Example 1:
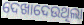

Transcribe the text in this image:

ଦେଖାଦେଉଥିଲା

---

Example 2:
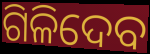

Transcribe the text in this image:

ଗିଳିଦେବ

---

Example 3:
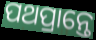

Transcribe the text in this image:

ପଥପ୍ରାନ୍ତେ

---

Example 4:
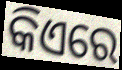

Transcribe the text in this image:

କିଏରେ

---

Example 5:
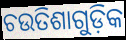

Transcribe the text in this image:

ଚଉତିଶାଗୁଡ଼ିକ